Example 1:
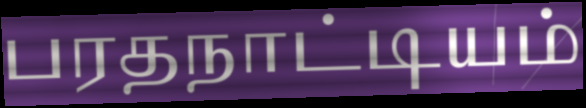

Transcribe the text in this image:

பரதநாட்டியம்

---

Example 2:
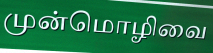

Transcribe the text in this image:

முன்மொழிவை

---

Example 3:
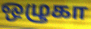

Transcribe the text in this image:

ஒழுகா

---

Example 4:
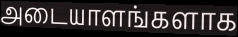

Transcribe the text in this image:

அடையாளங்களாக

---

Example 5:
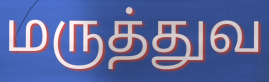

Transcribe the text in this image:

மருத்துவ